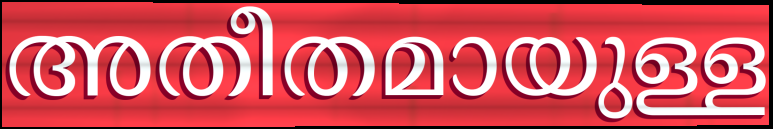
അതീതമായുള്ള